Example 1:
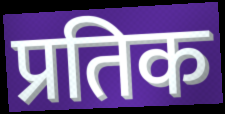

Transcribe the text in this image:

प्रतिक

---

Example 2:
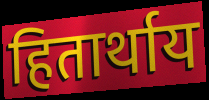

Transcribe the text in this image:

हितार्थाय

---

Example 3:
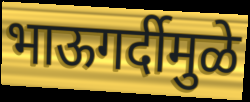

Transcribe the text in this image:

भाऊगर्दीमुळे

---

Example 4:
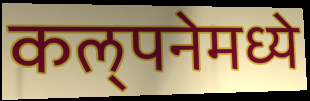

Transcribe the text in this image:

कल्पनेमध्ये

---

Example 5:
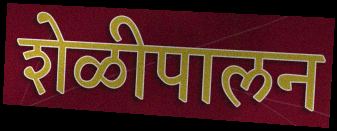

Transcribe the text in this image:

शेळीपालन